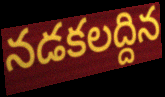
నడకలద్దిన